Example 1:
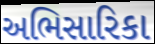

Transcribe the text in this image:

અભિસારિકા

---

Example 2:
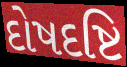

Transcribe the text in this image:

દોષદષ્ટિ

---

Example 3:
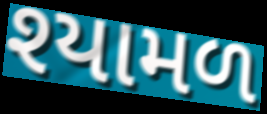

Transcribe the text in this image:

શ્યામળ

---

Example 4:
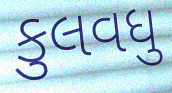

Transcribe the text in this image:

કુલવધુ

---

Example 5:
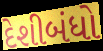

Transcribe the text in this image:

દેશીબંધો